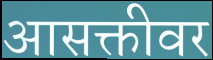
आसक्तीवर